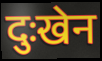
दुःखेन